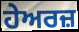
ਹੇਅਰਜ਼